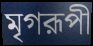
মৃগরূপী